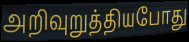
அறிவுறுத்தியபோது